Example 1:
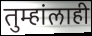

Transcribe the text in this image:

तुम्हांलाही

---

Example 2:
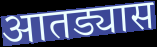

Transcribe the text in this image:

आतड्यास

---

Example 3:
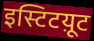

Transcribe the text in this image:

इस्टिटय़ूट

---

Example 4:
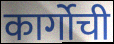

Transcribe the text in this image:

कार्गोची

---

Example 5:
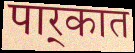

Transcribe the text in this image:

पार्कात